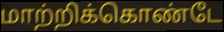
மாற்றிக்கொண்டே